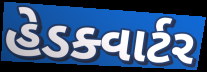
હેડક્વાર્ટર